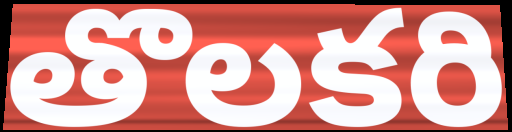
తొలకరి